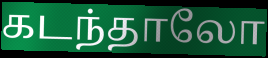
கடந்தாலோ